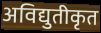
अविद्युतीकृत